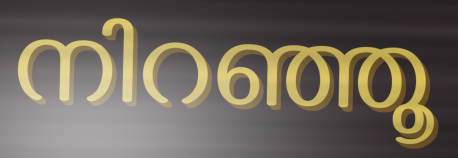
നിറഞ്ഞൂ